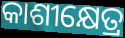
କାଶୀକ୍ଷେତ୍ର